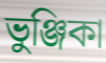
ভুঞ্জিকা